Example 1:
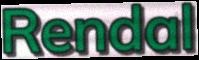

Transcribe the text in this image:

Rendal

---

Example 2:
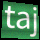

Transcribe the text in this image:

taj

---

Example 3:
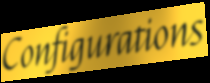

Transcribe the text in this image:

Configurations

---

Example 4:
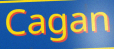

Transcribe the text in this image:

Cagan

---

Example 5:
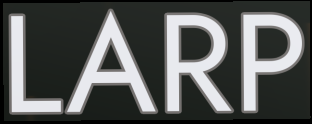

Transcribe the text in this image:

LARP